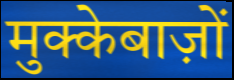
मुक्केबाज़ों